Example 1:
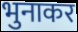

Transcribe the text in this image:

भुनाकर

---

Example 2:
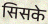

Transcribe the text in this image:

सिसके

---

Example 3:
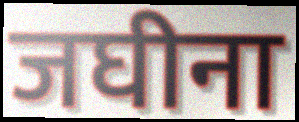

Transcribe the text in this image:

जघीना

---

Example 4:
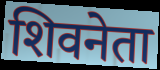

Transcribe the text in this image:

शिवनेता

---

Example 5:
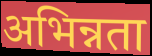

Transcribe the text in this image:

अभिन्नता